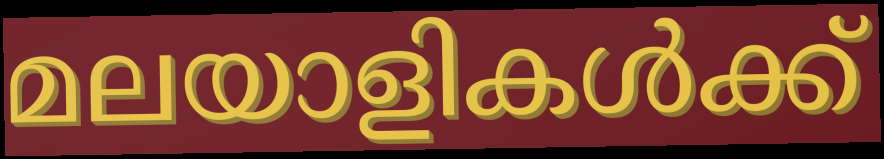
മലയാളികൾക്ക്